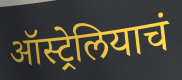
ऑस्ट्रेलियाचं